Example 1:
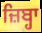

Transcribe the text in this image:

ਜ਼ਿਬ੍ਹਾ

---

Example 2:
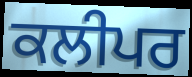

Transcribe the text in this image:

ਕਲੀਪਰ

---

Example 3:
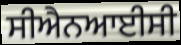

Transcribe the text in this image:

ਸੀਐਨਆਈਸੀ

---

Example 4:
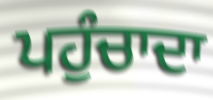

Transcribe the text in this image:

ਪਹੁੰਚਾਦਾ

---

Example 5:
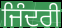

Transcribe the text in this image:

ਜਿੰਦਰੀ